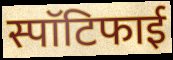
स्पॉटिफाई